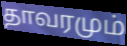
தாவரமும்